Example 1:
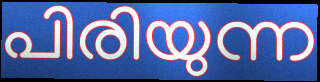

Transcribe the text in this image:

പിരിയുന്ന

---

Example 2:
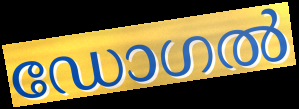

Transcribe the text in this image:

ഡോഗൽ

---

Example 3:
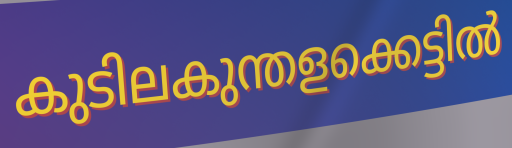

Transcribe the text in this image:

കുടിലകുന്തളക്കെട്ടിൽ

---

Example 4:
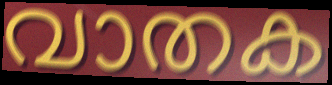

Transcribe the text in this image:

വാതക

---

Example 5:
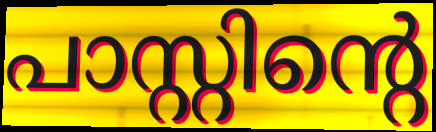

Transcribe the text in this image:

പാസ്റ്റിന്റെ